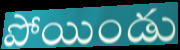
పోయిండు